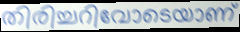
തിരിച്ചറിവോടെയാണ്